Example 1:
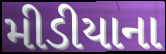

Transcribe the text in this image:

મીડીયાના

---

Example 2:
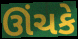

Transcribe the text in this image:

ઊંચકે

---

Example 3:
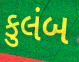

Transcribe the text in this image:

કુલંબ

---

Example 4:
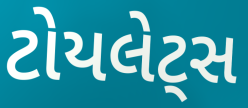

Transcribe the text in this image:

ટોયલેટ્સ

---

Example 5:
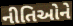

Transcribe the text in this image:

નીતિઓને